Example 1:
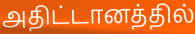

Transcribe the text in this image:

அதிட்டானத்தில்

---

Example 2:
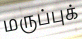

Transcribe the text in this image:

மருப்புக்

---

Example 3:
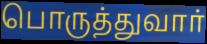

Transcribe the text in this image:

பொருத்துவார்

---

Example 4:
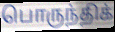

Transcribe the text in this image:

பொருந்திக்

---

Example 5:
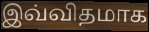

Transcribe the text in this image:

இவ்விதமாக